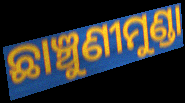
ଛାଞ୍ଚୁଣୀମୁଣ୍ଡା